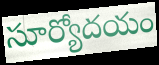
సూర్యోదయం